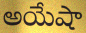
అయేషా